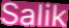
Salik